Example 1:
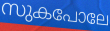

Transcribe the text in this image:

സുകപോലേ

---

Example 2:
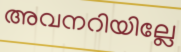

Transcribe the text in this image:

അവനറിയില്ലേ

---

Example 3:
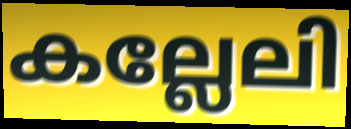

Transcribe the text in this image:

കല്ലേലി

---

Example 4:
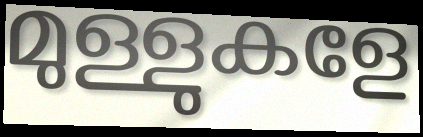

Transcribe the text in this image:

മുള്ളുകളേ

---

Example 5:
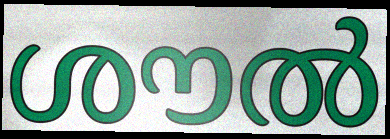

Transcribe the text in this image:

ശൗൽ